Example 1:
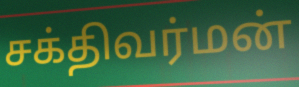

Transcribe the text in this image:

சக்திவர்மன்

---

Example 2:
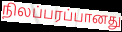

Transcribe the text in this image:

நிலப்பரப்பானது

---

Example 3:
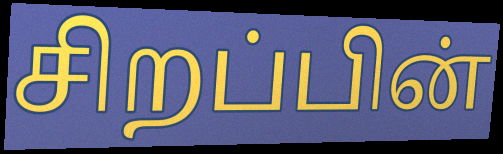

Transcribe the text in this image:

சிறப்பின்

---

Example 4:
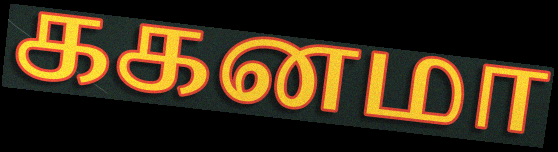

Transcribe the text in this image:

ககனமா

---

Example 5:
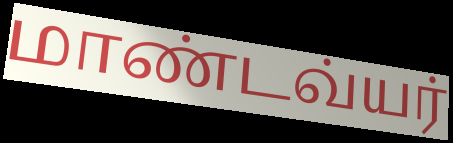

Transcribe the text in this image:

மாண்டவ்யர்